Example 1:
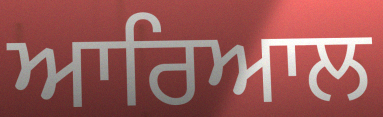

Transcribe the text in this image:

ਆਰਿਆਲ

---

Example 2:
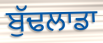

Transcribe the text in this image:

ਬੁੱਢਲਾਡਾ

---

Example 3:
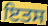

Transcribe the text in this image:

ਇਤਸ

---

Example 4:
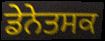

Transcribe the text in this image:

ਡੇਨੇਤਸਕ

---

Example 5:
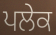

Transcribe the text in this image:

ਪਲੇਕ